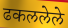
ढकललेले